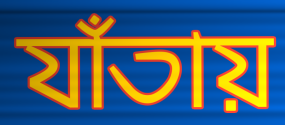
যাঁতায়